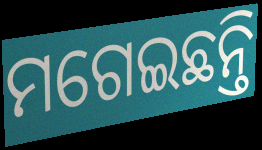
ମଗେଇଛନ୍ତି